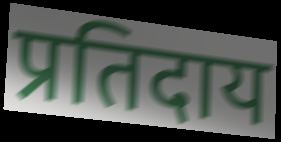
प्रतिदाय